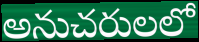
అనుచరులలో